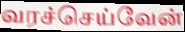
வரச்செய்வேன்